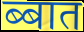
ब्बात